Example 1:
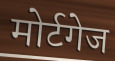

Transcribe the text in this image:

मोर्टगेज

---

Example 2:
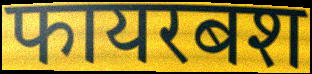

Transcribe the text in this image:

फायरबश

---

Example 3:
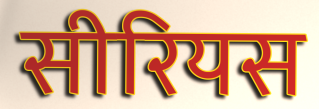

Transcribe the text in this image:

सीरियस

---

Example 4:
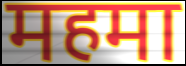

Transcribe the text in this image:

महमा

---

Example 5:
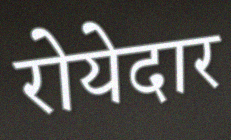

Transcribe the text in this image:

रोयेदार